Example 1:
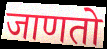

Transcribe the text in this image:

जाणतो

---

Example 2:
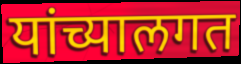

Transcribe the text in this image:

यांच्यालगत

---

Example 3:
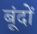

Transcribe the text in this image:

बूंदों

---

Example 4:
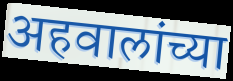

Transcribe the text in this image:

अहवालांच्या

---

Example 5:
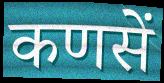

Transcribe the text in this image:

कणसें